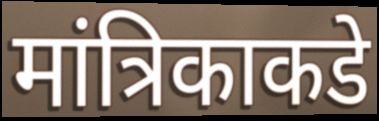
मांत्रिकाकडे